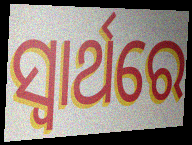
ସ୍ବାର୍ଥରେ